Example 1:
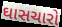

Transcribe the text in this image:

ઘાસચારો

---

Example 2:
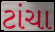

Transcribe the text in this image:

ટાંચા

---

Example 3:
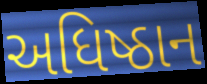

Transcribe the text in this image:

અધિષ્ઠાન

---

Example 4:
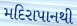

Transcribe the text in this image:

મદિરાપાનથી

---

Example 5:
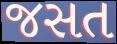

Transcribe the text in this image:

જસત